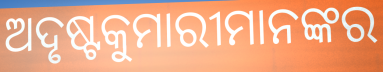
ଅଦୃଷ୍ଟକୁମାରୀମାନଙ୍କର